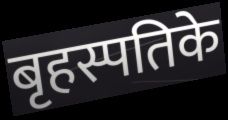
बृहस्पतिके